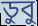
ডুবু